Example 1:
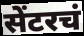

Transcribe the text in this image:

सेंटरचं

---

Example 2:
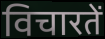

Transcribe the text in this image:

विचारतें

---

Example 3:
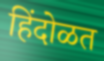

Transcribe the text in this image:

हिंदोळत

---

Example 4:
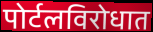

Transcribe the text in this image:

पोर्टलविरोधात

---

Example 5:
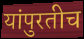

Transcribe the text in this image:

यांपुरतीच